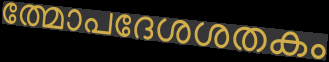
ത്മോപദേശശതകം